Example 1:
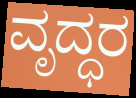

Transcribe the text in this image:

ವೃದ್ಧರ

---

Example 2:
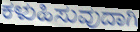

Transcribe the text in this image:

ಕಳುಹಿಸುವುದಾಗಿ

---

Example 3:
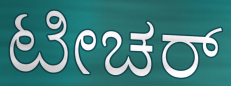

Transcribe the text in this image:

ಟೀಚರ್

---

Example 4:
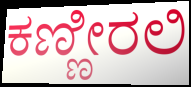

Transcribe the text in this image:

ಕಣ್ಣೀರಲಿ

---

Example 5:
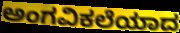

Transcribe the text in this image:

ಅಂಗವಿಕಲೆಯಾದ